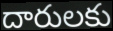
దారులకు